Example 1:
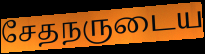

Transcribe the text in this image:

சேதநருடைய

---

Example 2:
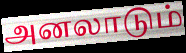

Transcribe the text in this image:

அனலாடும்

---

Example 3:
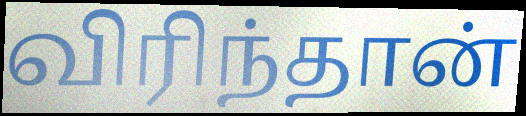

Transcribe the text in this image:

விரிந்தான்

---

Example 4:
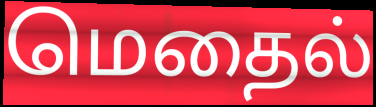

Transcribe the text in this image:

மெதைல்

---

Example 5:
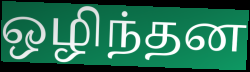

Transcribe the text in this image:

ஒழிந்தன